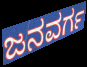
ಜನವರ್ಗ